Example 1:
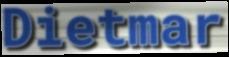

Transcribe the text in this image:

Dietmar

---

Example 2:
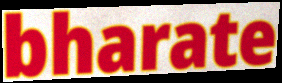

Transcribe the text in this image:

bharate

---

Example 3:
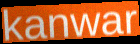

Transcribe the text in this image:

kanwar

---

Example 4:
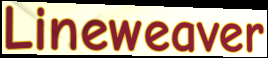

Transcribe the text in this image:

Lineweaver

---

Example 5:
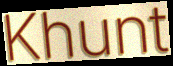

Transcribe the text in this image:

Khunt